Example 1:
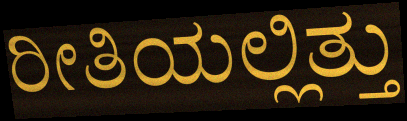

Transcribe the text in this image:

ರೀತಿಯಲ್ಲಿತ್ತು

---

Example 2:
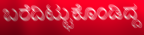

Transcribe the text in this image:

ಬರೆದಿಟ್ಟುಕೊಂಡಿದ್ದ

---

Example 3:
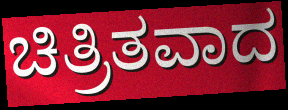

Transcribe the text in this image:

ಚಿತ್ರಿತವಾದ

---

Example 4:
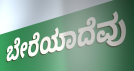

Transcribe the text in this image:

ಬೇರೆಯಾದೆವು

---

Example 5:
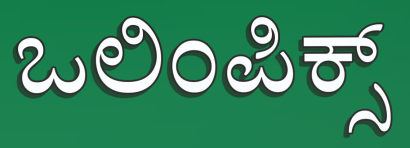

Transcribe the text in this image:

ಒಲಿಂಪಿಕ್ಸ್